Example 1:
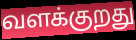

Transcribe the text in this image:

வளக்குறது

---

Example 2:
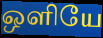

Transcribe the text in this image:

ஒளியே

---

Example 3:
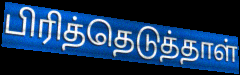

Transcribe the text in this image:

பிரித்தெடுத்தாள்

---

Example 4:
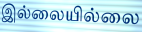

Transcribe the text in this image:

இல்லையில்லை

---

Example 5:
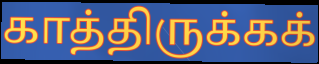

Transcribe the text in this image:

காத்திருக்கக்